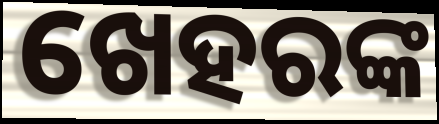
ଖେହରଙ୍କ